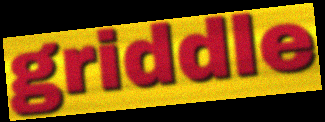
griddle